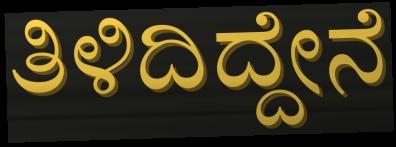
ತಿಳಿದಿದ್ದೇನೆ